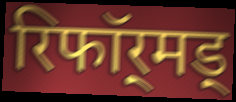
रिफॉर्मड्